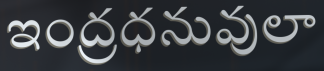
ఇంద్రధనువులా